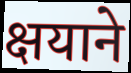
क्षयाने